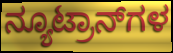
ನ್ಯೂಟ್ರಾನ್‌ಗಳ